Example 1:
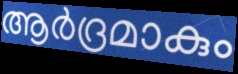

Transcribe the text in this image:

ആർദ്രമാകും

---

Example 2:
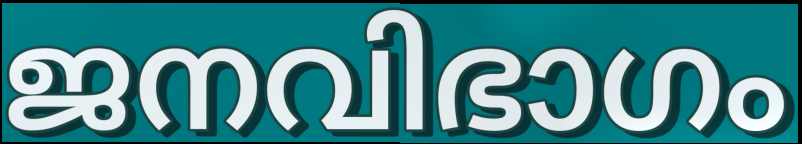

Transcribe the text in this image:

ജനവിഭാഗം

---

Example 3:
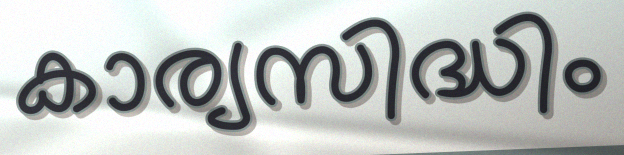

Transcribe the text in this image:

കാര്യസിദ്ധിം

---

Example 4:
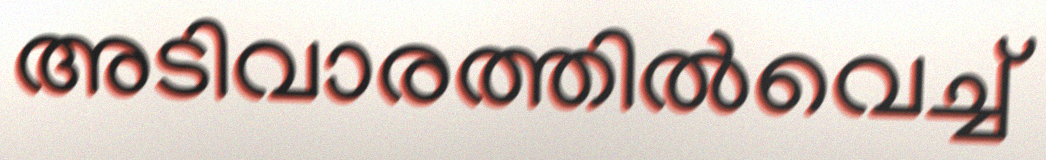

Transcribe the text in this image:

അടിവാരത്തിൽവെച്ച്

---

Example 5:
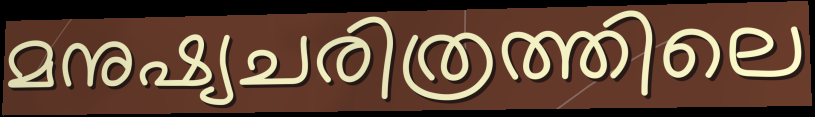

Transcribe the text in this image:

മനുഷ്യചരിത്രത്തിലെ